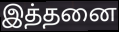
இத்தனை